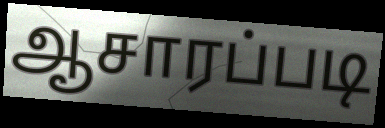
ஆசாரப்படி